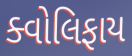
ક્વોલિફાય